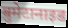
बुमेटानाइड